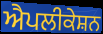
ਐਪਲੀਕੇਸ਼ਨ